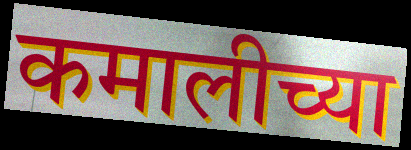
कमालीच्या